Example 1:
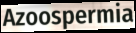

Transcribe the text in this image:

Azoospermia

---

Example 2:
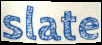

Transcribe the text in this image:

slate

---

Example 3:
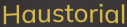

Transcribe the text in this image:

Haustorial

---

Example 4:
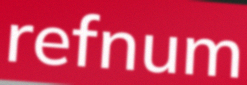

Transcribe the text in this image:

refnum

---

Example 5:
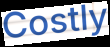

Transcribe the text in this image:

Costly